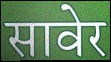
सावेर